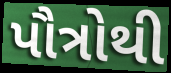
પૌત્રોથી